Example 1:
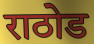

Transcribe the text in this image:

राठोड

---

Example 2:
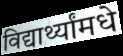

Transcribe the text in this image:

विद्यार्थ्यांमधे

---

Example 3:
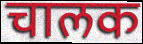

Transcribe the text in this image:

चालक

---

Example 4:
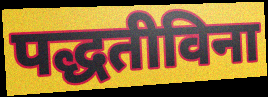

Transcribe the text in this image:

पद्धतीविना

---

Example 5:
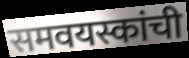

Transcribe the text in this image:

समवयस्कांची